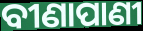
ବୀଣାପାଣୀ